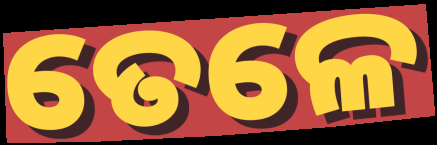
ତେଳେ